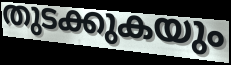
തുടക്കുകയും